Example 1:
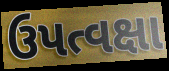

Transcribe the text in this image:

ઉપત્વક્ષા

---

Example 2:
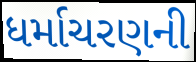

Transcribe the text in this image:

ધર્માચરણની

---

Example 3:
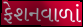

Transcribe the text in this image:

ફેશનવાળાં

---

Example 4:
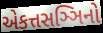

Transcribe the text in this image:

એકત્તસઞ્ઞિનો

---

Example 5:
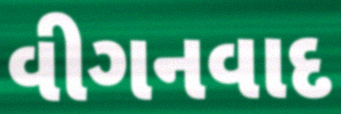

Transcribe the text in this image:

વીગનવાદ